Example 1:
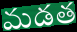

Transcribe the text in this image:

మడత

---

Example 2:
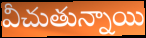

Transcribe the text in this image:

వీచుతున్నాయి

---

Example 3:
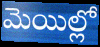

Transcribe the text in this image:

మెయిల్లో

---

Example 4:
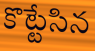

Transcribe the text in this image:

కొట్టేసిన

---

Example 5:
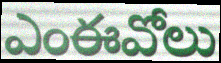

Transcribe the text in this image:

ఎంఈవోలు